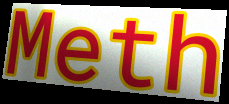
Meth